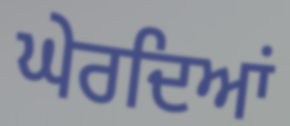
ਘੇਰਦਿਆਂ